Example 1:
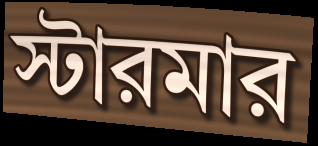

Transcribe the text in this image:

স্টারমার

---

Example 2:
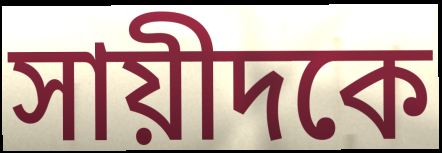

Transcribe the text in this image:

সায়ীদকে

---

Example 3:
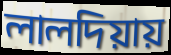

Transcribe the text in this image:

লালদিয়ায়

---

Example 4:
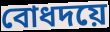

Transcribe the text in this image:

বোধদয়ে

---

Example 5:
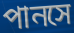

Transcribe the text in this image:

পানসে